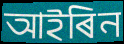
আইৰিন